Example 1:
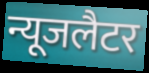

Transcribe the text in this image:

न्यूजलैटर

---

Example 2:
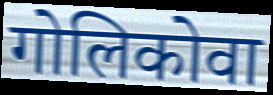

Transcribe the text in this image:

गोलिकोवा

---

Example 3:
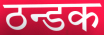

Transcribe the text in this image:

ठन्डक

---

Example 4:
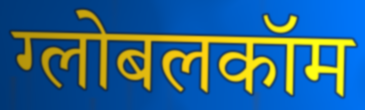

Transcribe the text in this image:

ग्लोबलकॉम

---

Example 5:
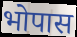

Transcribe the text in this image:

भोपास